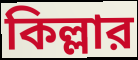
কিল্লার